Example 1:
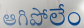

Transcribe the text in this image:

ఆగిపోలేం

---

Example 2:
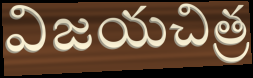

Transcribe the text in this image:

విజయచిత్ర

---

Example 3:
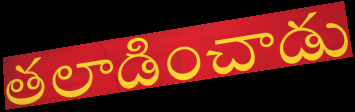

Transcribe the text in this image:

తలాడించాడు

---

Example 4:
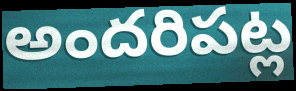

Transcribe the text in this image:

అందరిపట్ల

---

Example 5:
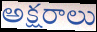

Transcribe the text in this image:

అక్షరాలు